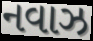
નવાઝ